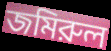
জমিরুল